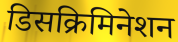
डिसक्रिमिनेशन